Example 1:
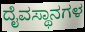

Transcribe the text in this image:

ದೈವಸ್ಥಾನಗಳ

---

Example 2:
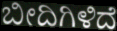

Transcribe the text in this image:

ಬೀದಿಗಿಳಿದೆ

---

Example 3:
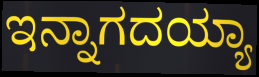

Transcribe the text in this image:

ಇನ್ನಾಗದಯ್ಯಾ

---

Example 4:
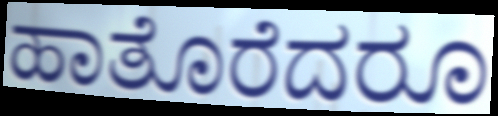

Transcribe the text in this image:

ಹಾತೊರೆದರೂ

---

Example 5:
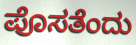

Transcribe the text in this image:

ಪೊಸತೆಂದು